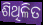
ଶିଥିଳିତ